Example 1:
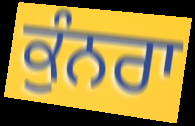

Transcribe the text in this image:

ਕੁੰਨਰਾ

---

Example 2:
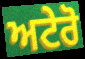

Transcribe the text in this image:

ਅਟੇਰੋ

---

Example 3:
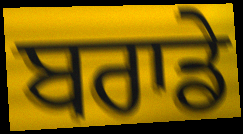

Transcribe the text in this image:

ਬਰਾਡੇ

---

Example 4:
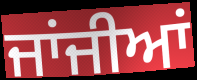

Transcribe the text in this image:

ਜਾਂਜੀਆਂ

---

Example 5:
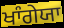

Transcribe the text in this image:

ਖਾੰਗੇਯਾ